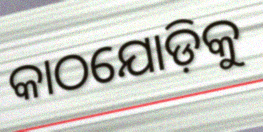
କାଠଯୋଡ଼ିକୁ